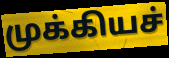
முக்கியச்